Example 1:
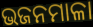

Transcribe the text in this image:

ଭଜନମାଳା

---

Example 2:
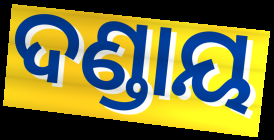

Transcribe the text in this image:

ଦଣ୍ଡାୟ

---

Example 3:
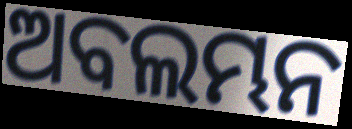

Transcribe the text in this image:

ଅବଲମ୍ଭନ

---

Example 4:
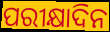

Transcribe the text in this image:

ପରୀକ୍ଷାଦିନ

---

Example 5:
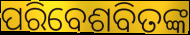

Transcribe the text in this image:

ପରିବେଶବିତଙ୍କ